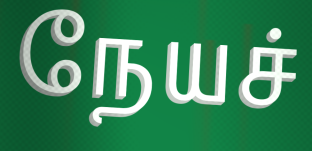
நேயச்